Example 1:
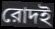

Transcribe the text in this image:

রোদই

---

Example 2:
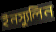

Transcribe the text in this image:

ইনস্যুলিন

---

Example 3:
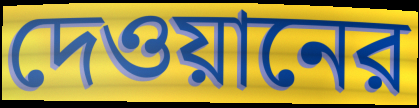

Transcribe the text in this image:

দেওয়ানের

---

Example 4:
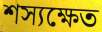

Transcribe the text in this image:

শস্যক্ষেত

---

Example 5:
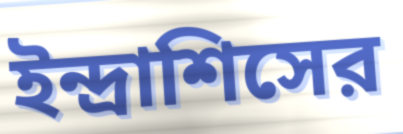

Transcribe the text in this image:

ইন্দ্রাশিসের